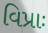
વિપ્રાઃ